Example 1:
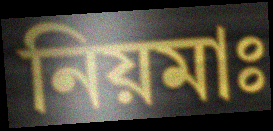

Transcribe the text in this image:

নিয়মাঃ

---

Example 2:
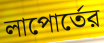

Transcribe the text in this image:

লাপোর্তের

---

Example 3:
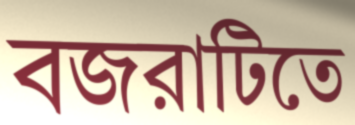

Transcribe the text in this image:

বজরাটিতে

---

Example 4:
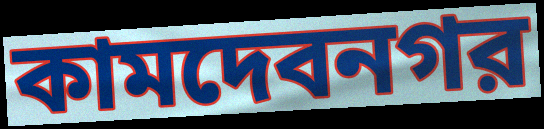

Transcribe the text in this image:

কামদেবনগর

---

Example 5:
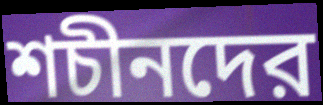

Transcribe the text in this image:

শচীনদের